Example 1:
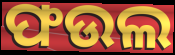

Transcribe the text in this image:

ଫଉଲ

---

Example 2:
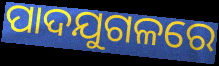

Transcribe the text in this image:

ପାଦଯୁଗଳରେ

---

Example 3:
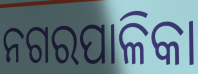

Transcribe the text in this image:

ନଗରପାଳିକା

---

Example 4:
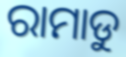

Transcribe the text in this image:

ରାମାଡୁ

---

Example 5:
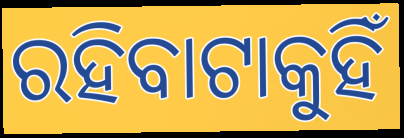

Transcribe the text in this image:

ରହିବାଟାକୁହିଁ